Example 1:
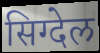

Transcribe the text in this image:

सिग्देल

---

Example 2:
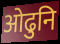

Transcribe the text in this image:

ओढुनि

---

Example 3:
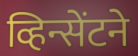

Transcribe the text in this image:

व्हिन्सेंटने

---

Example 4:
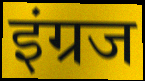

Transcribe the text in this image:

इंग्रज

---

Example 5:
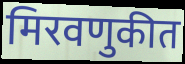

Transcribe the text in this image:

मिरवणुकीत